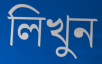
লিখুন